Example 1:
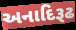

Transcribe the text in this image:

અનાદિરૂઢ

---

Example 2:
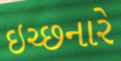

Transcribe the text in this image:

ઇચ્છનારે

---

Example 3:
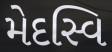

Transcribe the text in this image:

મેદસ્વિ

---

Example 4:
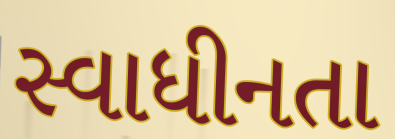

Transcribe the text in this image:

સ્વાધીનતા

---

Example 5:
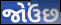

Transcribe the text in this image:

જોઉંછ